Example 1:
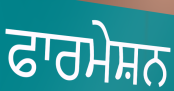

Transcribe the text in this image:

ਫਾਰਮੇਸ਼ਨ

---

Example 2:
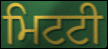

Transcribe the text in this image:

ਮਿਟਟੀ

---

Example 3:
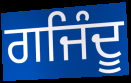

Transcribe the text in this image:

ਗਜਿੰਦੂ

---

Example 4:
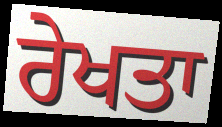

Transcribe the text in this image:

ਰੇਖਤਾ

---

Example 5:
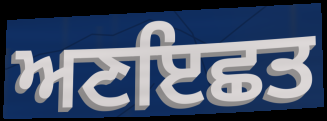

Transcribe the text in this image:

ਅਣਇਛਤ